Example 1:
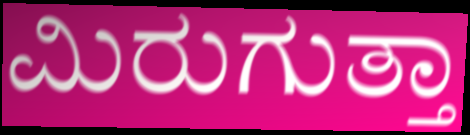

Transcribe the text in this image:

ಮಿರುಗುತ್ತಾ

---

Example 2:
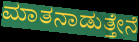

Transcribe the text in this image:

ಮಾತನಾಡುತ್ತೇನೆ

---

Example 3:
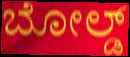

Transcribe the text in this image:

ಬೋಲ್ಡ್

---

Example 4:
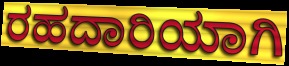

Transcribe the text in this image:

ರಹದಾರಿಯಾಗಿ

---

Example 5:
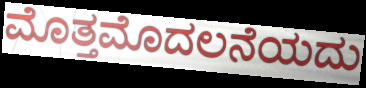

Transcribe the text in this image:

ಮೊತ್ತಮೊದಲನೆಯದು